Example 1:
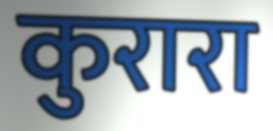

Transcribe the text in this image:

कुरारा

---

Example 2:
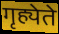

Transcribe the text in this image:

गृह्येते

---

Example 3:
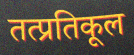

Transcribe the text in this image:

तत्प्रतिकूल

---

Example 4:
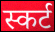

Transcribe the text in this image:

स्कर्ट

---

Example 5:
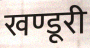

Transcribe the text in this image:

खण्डूरी